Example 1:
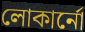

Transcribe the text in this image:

লোকার্নো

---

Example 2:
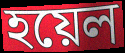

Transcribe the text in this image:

হয়েল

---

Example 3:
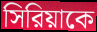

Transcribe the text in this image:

সিরিয়াকে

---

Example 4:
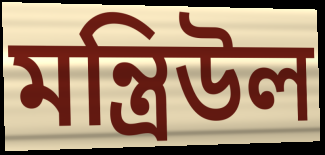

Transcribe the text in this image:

মন্ত্রিউল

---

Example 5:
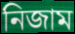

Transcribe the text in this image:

নিজাম